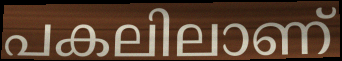
പകലിലാണ്